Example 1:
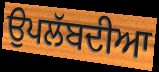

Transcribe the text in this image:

ਉਪਲੱਬਦੀਆ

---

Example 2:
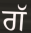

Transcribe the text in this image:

ਗੱ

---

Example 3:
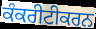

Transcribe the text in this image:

ਕੰਕਰੀਟੀਕਰਨ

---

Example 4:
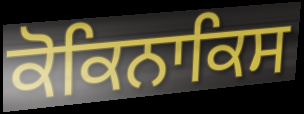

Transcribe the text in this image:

ਕੋਕਿਨਾਕਿਸ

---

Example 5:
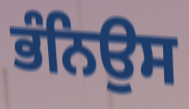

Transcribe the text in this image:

ਭੰਨਿਉਸ